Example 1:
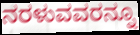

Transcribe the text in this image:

ನರಳುವವರನ್ನೂ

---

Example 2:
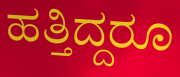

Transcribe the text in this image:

ಹತ್ತಿದ್ದರೂ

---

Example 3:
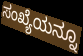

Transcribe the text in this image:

ಸಂಖ್ಯೆಯನ್ನೂ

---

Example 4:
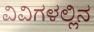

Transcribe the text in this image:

ವಿವಿಗಳಲ್ಲಿನ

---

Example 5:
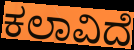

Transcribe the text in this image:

ಕಲಾವಿದೆ